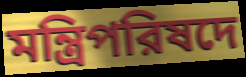
মন্ত্রিপরিষদে